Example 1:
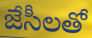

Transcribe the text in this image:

జేసీలతో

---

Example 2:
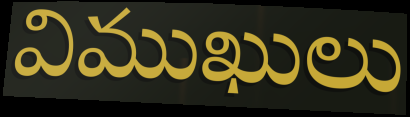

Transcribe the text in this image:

విముఖులు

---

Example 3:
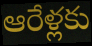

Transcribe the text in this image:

ఆరేళ్లకు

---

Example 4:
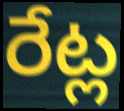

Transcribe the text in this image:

రేట్ల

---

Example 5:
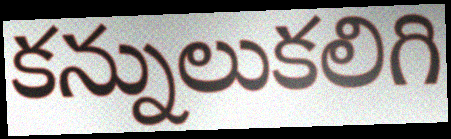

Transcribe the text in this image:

కన్నులుకలిగి